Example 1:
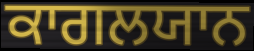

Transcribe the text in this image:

ਕਾਗਲਯਾਨ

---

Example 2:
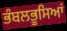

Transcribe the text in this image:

ਭੰਬਲਭੂਸਿਆਂ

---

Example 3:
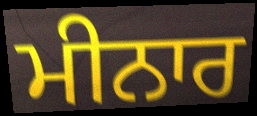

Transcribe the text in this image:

ਮੀਨਾਰ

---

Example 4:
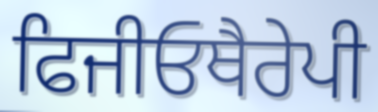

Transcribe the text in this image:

ਫਿਜੀਓਥੈਰੇਪੀ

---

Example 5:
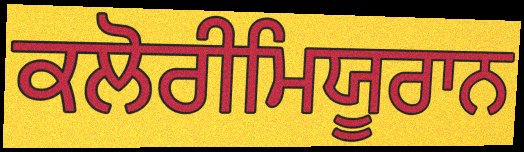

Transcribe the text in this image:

ਕਲੋਰੀਮਿਯੂਰਾਨ